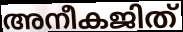
അനീകജിത്